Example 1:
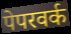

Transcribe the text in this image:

पेपरवर्क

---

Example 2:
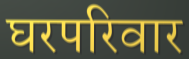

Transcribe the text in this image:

घरपरिवार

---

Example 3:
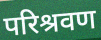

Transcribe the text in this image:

परिश्रवण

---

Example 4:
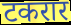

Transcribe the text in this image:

टकरार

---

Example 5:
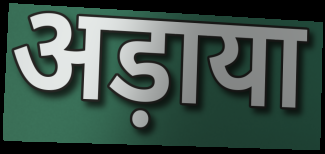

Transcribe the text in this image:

अड़ाया